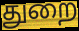
துறை